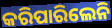
କରିପାରିଲେନି